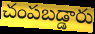
చంపబడ్డారు